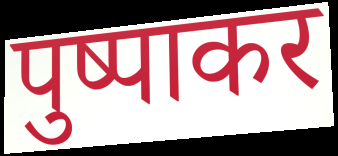
पुष्पाकर